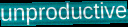
unproductive